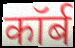
कॉर्ब